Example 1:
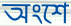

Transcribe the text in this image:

অংশে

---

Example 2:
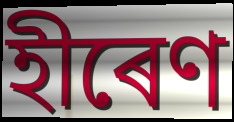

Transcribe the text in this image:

হীৰেণ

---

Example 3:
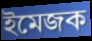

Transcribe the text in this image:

ইমেজক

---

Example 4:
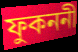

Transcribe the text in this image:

ফুকননী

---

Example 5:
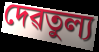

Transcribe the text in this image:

দেৱতুল্য